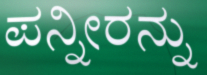
ಪನ್ನೀರನ್ನು